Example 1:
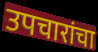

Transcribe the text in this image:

उपचारांचा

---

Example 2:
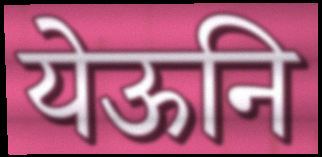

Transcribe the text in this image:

येऊनि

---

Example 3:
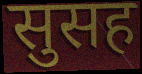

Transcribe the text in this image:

सुसह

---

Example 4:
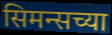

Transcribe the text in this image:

सिमन्सच्या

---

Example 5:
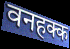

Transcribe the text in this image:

वनहक्क